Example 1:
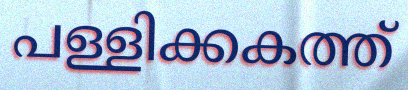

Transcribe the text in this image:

പള്ളിക്കകത്ത്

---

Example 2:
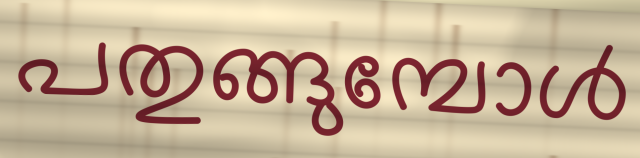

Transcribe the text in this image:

പതുങ്ങുമ്പോൾ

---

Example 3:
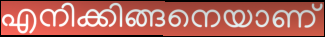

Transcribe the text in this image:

എനിക്കിങ്ങനെയാണ്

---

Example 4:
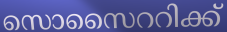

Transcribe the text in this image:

സൊസൈററിക്ക്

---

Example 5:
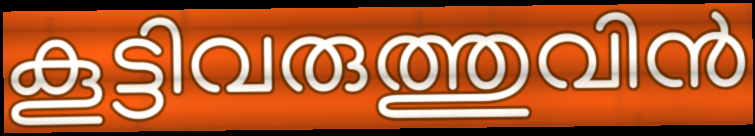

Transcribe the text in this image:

കൂട്ടിവരുത്തുവിൻ